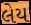
લેય